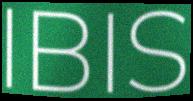
IBIS